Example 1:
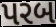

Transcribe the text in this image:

પરબ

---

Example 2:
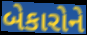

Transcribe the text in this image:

બેકારોને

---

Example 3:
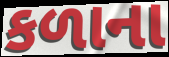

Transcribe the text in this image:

કળાના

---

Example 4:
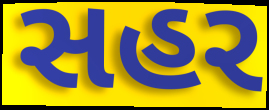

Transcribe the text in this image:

સહર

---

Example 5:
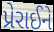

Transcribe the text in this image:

પ્રેરાઈને